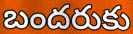
బందరుకు